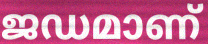
ജഡമാണ്